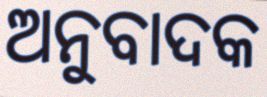
ଅନୁବାଦକ